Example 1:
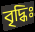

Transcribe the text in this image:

বৃদ্ধিঃ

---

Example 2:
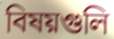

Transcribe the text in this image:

বিষয়গুলি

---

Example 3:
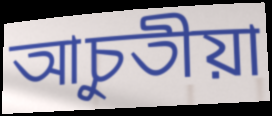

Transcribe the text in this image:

আচুতীয়া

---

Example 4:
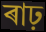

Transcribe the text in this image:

ৰাঢ়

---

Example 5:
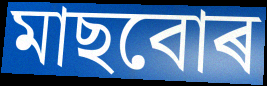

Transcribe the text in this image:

মাছবোৰ